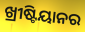
ଖ୍ରୀଷ୍ଟିୟାନର